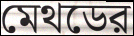
মেথডের